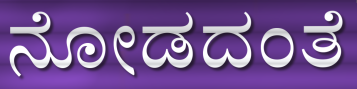
ನೋಡದಂತೆ